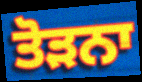
ਤੋੜਨਾ